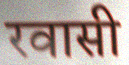
रवासी